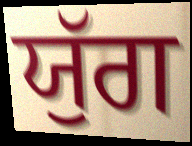
ਯੁੱਗ